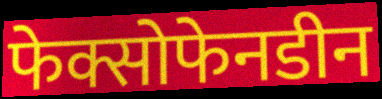
फेक्सोफेनडीन